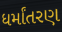
ધર્માંતરણ